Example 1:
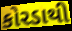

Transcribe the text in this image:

કોરડાથી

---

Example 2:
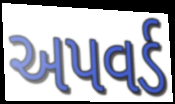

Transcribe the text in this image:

અપવર્ડ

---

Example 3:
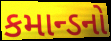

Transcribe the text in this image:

કમાન્ડનો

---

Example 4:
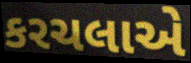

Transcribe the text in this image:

કરચલાએ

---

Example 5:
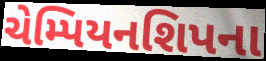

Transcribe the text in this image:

ચેમ્પિયનશિપના